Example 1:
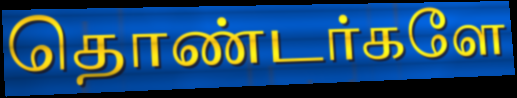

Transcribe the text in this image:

தொண்டர்களே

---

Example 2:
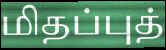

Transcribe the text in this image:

மிதப்புத்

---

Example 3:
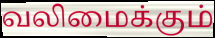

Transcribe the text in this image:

வலிமைக்கும்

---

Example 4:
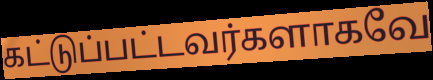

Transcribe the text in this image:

கட்டுப்பட்டவர்களாகவே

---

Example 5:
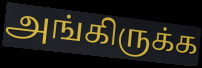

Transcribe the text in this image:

அங்கிருக்க